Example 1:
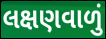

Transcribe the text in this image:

લક્ષણવાળું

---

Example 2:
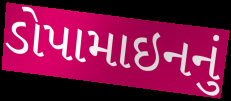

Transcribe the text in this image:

ડોપામાઇનનું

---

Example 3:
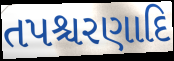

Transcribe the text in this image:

તપશ્ચરણાદિ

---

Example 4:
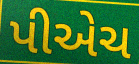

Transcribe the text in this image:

પીએચ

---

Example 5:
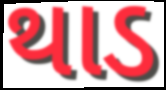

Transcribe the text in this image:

થાડ